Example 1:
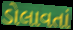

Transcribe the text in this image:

ડોલાવતાં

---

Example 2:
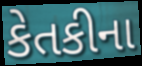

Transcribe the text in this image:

કેતકીના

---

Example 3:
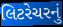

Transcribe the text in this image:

લિટરેચરનું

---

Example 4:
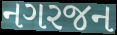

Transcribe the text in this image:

નગરજન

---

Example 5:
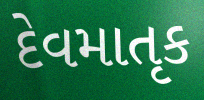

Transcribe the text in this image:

દેવમાતૃક